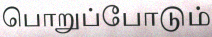
பொறுப்போடும்